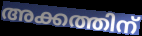
അക്കത്തിന്